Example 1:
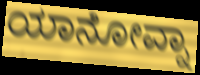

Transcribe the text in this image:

ಯಾನೋವ್ನಾ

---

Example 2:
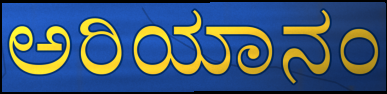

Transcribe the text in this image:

ಅರಿಯಾನಂ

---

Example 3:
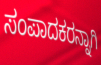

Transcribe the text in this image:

ಸಂಪಾದಕರನ್ನಾಗಿ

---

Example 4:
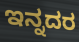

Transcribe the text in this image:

ಇನ್ನದರ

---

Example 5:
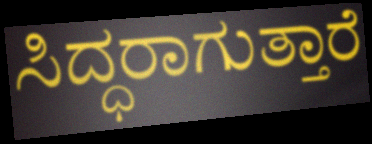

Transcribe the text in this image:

ಸಿದ್ಧರಾಗುತ್ತಾರೆ